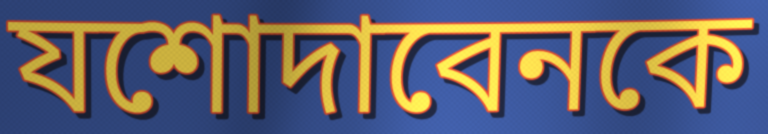
যশোদাবেনকে